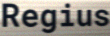
Regius